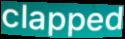
clapped